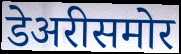
डेअरीसमोर